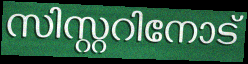
സിസ്റ്ററിനോട്